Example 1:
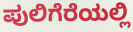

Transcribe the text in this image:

ಪುಲಿಗೆರೆಯಲ್ಲಿ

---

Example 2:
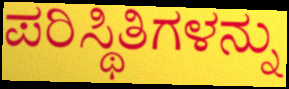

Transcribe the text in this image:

ಪರಿಸ್ಥಿತಿಗಳನ್ನು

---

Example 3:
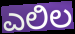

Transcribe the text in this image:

ಎಲಿಲ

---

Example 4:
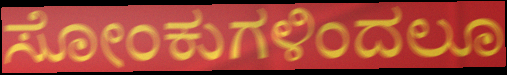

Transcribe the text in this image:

ಸೋಂಕುಗಳಿಂದಲೂ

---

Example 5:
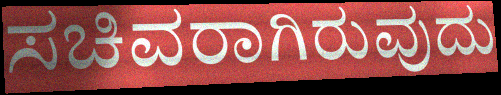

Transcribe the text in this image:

ಸಚಿವರಾಗಿರುವುದು